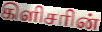
கிளிசரின்